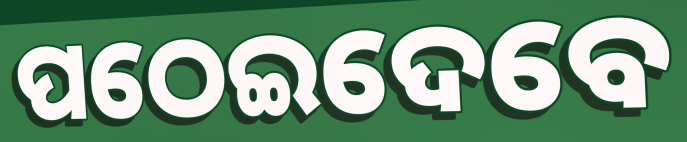
ପଠେଇଦେବେ